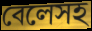
বেলেসহ